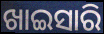
ଖାଇସାରି